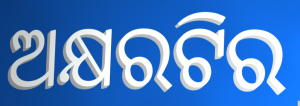
ଅକ୍ଷରଟିର